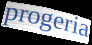
progeria